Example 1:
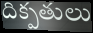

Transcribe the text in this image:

దిక్పతులు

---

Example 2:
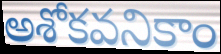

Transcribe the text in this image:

అశోకవనికాం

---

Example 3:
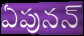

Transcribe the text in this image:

ఏపునన్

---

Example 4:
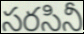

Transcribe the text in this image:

సరసినీ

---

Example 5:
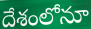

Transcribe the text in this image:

దేశంలోనూ